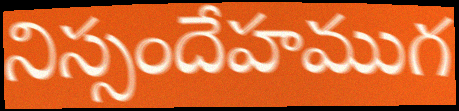
నిస్సందేహముగ